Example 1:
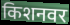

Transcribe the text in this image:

किशनवर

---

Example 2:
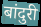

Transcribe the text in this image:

बांदुरी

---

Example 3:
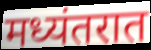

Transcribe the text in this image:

मध्यंतरात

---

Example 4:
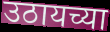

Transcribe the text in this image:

उठायच्या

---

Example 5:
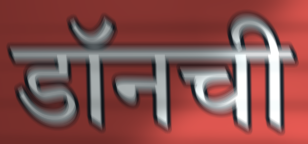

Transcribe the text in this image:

डॉनची